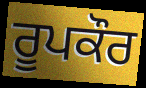
ਰੂਪਕੌਰ